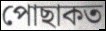
পোছাকত